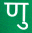
णु